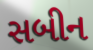
સબીન